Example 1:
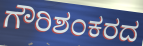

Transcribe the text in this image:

ಗೌರಿಶಂಕರದ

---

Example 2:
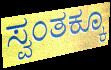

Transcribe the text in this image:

ಸ್ವಂತಕ್ಕೂ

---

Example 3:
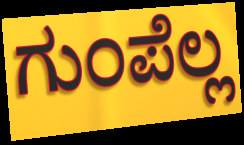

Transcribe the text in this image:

ಗುಂಪೆಲ್ಲ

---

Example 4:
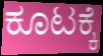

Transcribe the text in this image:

ಕೂಟಕ್ಕೆ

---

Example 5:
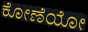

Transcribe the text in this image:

ಕೋಣೆಯೋ